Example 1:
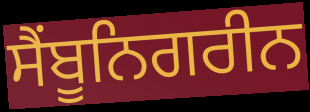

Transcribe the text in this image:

ਸੈਂਬੂਨਿਗਰੀਨ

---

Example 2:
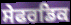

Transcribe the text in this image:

ਸੇਫਰਡਿਕ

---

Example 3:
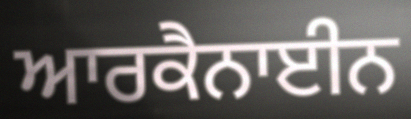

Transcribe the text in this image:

ਆਰਕੈਨਾਈਨ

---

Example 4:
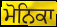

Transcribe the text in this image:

ਮੋਨਿਕਾ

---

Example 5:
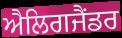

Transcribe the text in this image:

ਐਲਿਗਜੈਂਡਰ